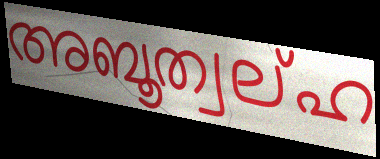
അബൂത്വല്ഹ